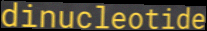
dinucleotide